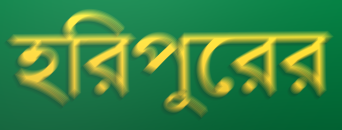
হরিপুরের